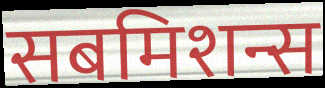
सबमिशन्स